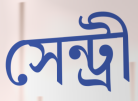
সেন্ট্রী